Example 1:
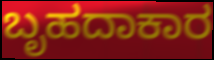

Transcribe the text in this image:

ಬೃಹದಾಕಾರ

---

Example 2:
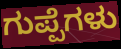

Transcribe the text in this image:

ಗುಪ್ಪೆಗಳು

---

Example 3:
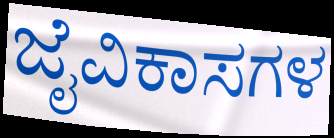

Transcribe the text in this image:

ಜೈವಿಕಾಸಗಳ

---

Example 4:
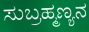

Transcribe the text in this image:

ಸುಬ್ರಹ್ಮಣ್ಯನ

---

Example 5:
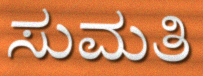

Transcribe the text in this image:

ಸುಮತಿ